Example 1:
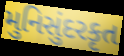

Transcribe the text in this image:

મુનિસુંદરકૃત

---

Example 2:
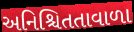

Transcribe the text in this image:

અનિશ્ચિતતાવાળા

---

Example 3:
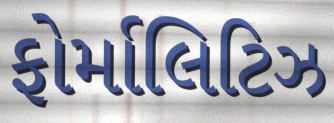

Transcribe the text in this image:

ફોર્માલિટિઝ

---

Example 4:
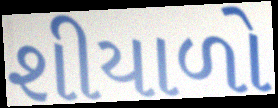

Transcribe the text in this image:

શીયાળો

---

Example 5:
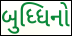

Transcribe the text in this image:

બુધ્ધિનો